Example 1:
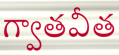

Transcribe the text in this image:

గ్వాతవీత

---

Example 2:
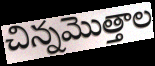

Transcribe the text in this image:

చిన్నమొత్తాల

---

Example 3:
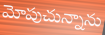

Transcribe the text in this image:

మోపుచున్నాను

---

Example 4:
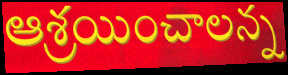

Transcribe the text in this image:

ఆశ్రయించాలన్న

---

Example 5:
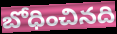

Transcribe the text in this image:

బోధించినది